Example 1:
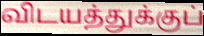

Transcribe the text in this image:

விடயத்துக்குப்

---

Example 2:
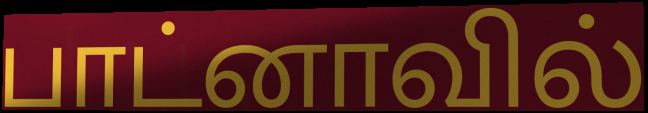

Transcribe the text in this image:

பாட்னாவில்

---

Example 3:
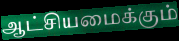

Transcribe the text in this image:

ஆட்சியமைக்கும்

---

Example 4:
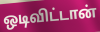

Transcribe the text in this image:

ஒடிவிட்டான்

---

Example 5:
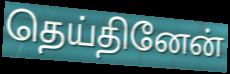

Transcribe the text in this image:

தெய்தினேன்